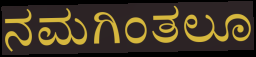
ನಮಗಿಂತಲೂ